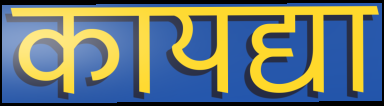
कायद्या